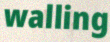
walling